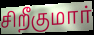
சிறீகுமார்